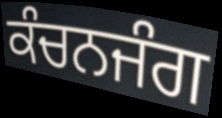
ਕੰਚਨਜੰਗ